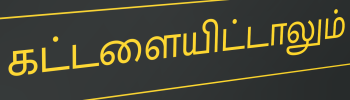
கட்டளையிட்டாலும்